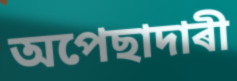
অপেছাদাৰী